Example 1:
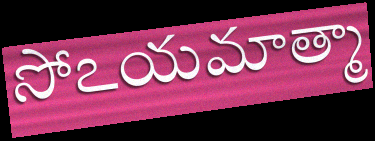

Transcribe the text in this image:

సోఽయమాత్మా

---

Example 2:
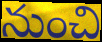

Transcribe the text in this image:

నుంచి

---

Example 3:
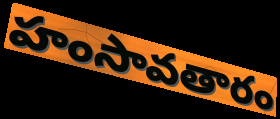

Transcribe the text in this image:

హంసావతారం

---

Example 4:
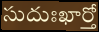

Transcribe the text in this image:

సుదుఃఖార్తో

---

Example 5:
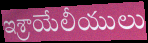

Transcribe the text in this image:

ఇశ్రాయేలీయులు